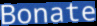
Bonate